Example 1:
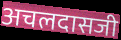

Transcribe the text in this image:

अचलदासजी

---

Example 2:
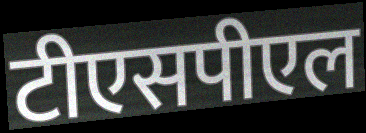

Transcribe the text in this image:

टीएसपीएल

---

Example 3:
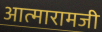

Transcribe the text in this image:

आत्मारामजी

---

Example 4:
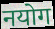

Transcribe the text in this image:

नयोग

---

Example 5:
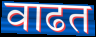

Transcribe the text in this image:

वाढत